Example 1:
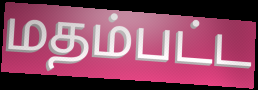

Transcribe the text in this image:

மதம்பட்ட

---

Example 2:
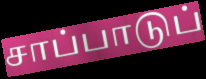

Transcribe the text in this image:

சாப்பாடுப்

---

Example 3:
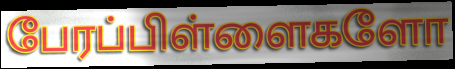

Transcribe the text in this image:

பேரப்பிள்ளைகளோ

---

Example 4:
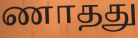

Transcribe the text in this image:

ணாதது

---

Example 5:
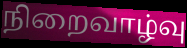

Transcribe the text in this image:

நிறைவாழ்வு